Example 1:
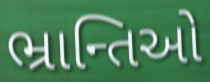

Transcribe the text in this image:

ભ્રાન્તિઓ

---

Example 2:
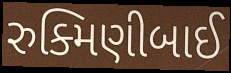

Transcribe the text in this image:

રુક્મિણીબાઈ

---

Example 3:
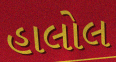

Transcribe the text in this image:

હાલોલ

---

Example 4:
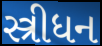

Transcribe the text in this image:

સ્ત્રીધન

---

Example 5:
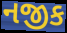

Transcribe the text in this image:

નજીક